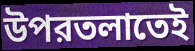
উপরতলাতেই